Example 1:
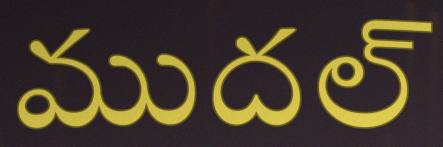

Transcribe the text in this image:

ముదల్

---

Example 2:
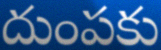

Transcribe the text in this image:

దుంపకు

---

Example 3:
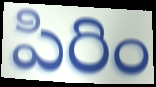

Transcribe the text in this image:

పిరిం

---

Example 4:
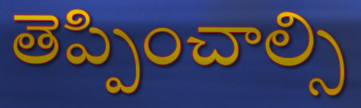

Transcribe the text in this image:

తెప్పించాల్సి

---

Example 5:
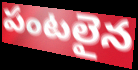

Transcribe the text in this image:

పంటలైన